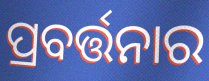
ପ୍ରବର୍ତ୍ତନାର